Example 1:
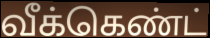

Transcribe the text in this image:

வீக்கெண்ட்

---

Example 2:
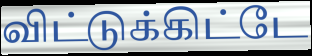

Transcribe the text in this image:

விட்டுக்கிட்டே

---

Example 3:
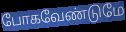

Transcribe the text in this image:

போகவேண்டுமே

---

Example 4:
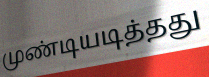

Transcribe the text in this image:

முண்டியடித்தது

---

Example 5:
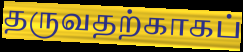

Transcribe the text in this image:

தருவதற்காகப்